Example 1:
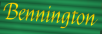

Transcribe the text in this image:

Bennington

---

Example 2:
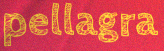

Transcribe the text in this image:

pellagra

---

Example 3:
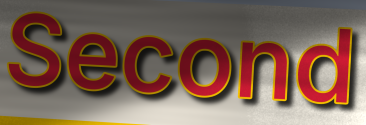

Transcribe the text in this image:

Second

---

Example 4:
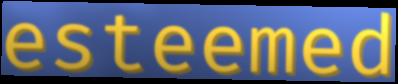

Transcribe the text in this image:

esteemed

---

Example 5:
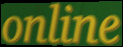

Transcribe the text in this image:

online